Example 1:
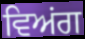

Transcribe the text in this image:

ਵਿਅਂਗ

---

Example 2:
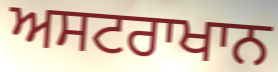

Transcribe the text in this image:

ਅਸਟਰਾਖਾਨ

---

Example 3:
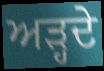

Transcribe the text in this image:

ਅੜ੍ਹਦੇ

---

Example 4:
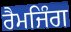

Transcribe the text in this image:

ਰੈਮਜਿੰਗ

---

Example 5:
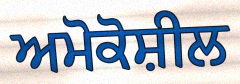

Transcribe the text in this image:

ਅਮੋਕੋਸ਼ੀਲ